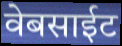
वेबसाईट